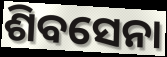
ଶିବସେନା